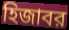
হিজাবর